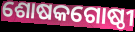
ଶୋଷକଗୋଷ୍ଠୀ